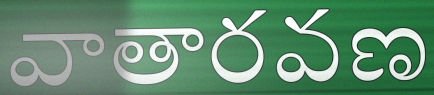
వాతారవణ